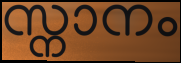
സ്നാനം